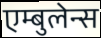
एम्बुलेन्स